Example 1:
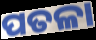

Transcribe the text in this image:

ପତଳା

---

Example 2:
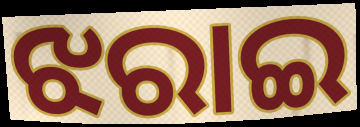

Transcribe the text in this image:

ଝରାଇ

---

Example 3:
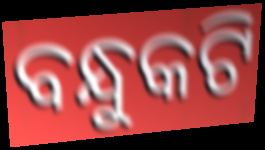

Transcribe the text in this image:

ବନ୍ଧୁକଟି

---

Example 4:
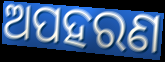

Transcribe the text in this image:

ଅପହରଣ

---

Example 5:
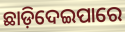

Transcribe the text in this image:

ଛାଡ଼ିଦେଇପାରେ